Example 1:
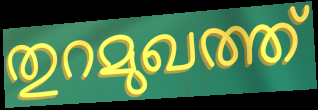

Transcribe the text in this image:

തുറമുഖത്ത്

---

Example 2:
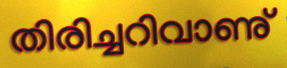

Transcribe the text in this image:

തിരിച്ചറിവാണു്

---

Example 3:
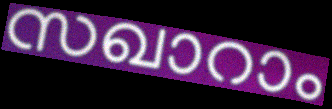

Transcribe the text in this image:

സഖാറാം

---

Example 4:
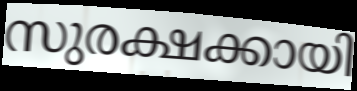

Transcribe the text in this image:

സുരക്ഷക്കായി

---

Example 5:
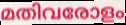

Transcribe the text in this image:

മതിവരോളം